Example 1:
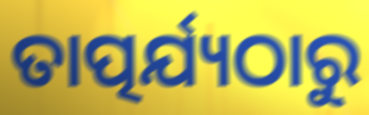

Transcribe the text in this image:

ତାତ୍ପର୍ଯ୍ୟଠାରୁ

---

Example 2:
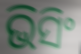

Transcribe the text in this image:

ଭିସିଂ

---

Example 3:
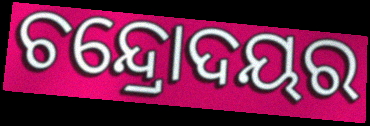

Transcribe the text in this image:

ଚନ୍ଦ୍ରୋଦୟର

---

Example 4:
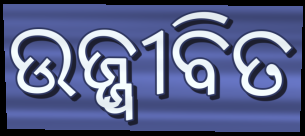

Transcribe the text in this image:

ଉଜ୍ଜ୍ୱୀବିତ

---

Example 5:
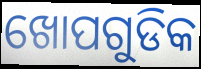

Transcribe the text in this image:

ଖୋପଗୁଡିକ